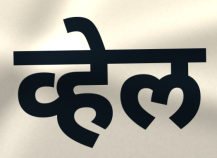
व्हेल